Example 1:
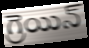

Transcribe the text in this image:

గ్రెయిన్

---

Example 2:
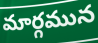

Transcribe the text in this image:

మార్గమున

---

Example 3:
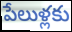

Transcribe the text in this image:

పేలుళ్లకు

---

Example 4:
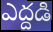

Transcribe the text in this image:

ఎద్దడి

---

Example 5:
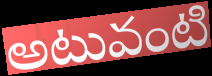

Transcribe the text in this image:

అటువంటి